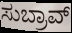
ಸುಬ್ರಾವ್